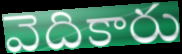
వెదికారు